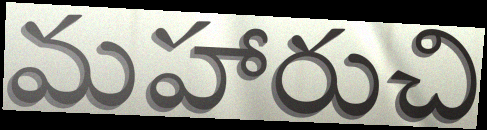
మహారుచి